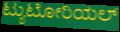
ಟ್ಯುಟೋರಿಯಲ್